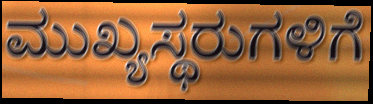
ಮುಖ್ಯಸ್ಥರುಗಳಿಗೆ